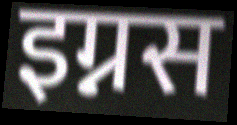
इग्नस